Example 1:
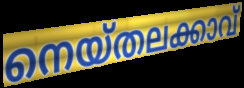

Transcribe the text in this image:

നെയ്തലക്കാവ്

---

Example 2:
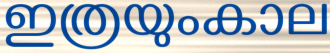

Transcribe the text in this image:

ഇത്രയുംകാല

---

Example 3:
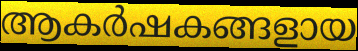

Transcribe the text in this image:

ആകർഷകങ്ങളായ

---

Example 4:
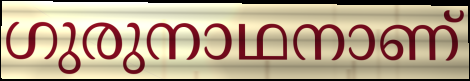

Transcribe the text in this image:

ഗുരുനാഥനാണ്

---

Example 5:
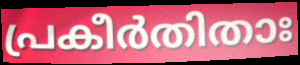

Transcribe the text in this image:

പ്രകീർതിതാഃ